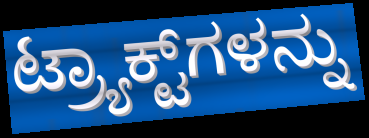
ಟ್ರ್ಯಾಕ್ಟ್‌ಗಳನ್ನು